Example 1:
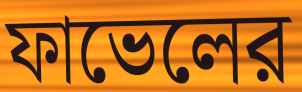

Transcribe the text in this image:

ফাভেলের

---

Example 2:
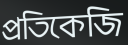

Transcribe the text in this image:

প্রতিকেজি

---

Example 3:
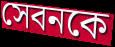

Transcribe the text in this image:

সেবনকে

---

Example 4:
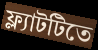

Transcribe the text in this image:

ফ্ল্যাটটিতে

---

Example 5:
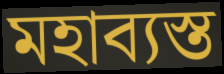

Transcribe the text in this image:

মহাব্যস্ত